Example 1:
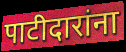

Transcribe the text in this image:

पाटीदारांना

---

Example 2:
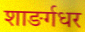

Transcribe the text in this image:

शाङर्गधर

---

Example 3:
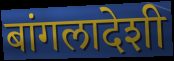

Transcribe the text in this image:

बांगलादेशी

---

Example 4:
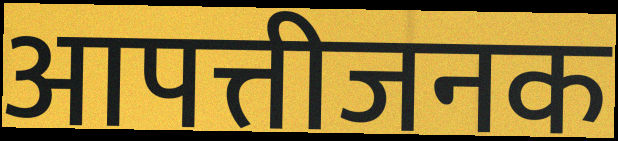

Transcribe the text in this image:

आपत्तीजनक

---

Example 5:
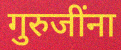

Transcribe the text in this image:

गुरुजींना